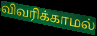
விவரிக்காமல்